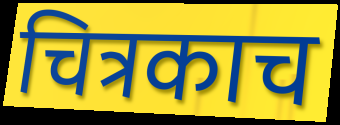
चित्रकाच